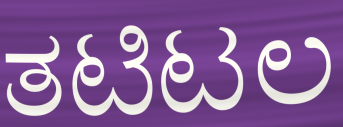
ತಟಿಟಲ